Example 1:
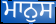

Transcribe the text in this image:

ਮਾਨੁਸ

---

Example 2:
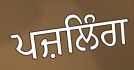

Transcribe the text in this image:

ਪਜ਼ਲਿੰਗ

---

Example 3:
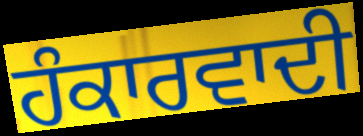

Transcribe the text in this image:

ਹੰਕਾਰਵਾਦੀ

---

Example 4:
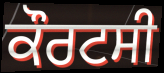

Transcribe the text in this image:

ਕੌਰਟਸੀ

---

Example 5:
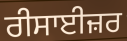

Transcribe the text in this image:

ਰੀਸਾਈਜ਼ਰ